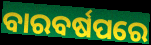
ବାରବର୍ଷପରେ